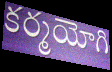
కర్మయోగి